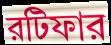
রটিফার